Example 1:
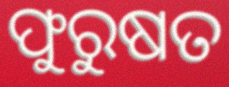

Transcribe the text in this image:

ଫୁରୁଷତ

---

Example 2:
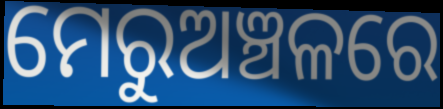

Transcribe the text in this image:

ମେରୁଅଞ୍ଚଳରେ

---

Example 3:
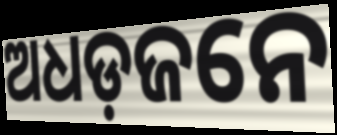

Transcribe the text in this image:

ଅଧଡ଼ଜନେ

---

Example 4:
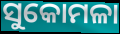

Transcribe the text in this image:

ସୁକୋମଳା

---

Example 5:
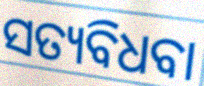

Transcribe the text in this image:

ସତ୍ୟବିଧବା